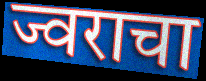
ज्वराचा